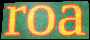
roa